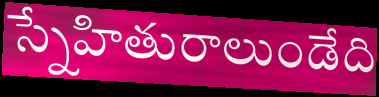
స్నేహితురాలుండేది